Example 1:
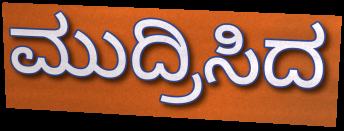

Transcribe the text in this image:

ಮುದ್ರಿಸಿದ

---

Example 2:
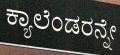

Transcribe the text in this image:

ಕ್ಯಾಲೆಂಡರನ್ನೇ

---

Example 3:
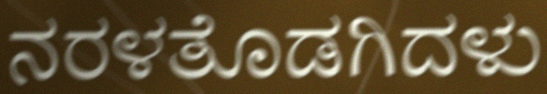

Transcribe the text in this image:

ನರಳತೊಡಗಿದಳು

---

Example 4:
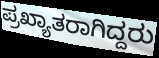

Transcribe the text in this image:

ಪ್ರಖ್ಯಾತರಾಗಿದ್ದರು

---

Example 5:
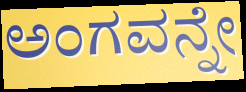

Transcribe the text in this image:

ಅಂಗವನ್ನೇ